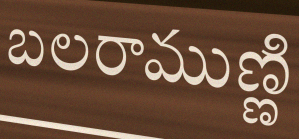
బలరాముణ్ణి